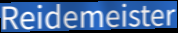
Reidemeister